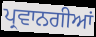
ਪ੍ਰਵਾਨਗੀਆਂ